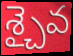
శ్చైవ